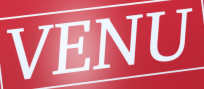
VENU